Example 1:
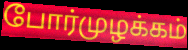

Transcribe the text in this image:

போர்முழக்கம்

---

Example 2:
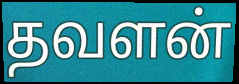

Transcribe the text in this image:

தவளன்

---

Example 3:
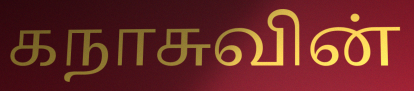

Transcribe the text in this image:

கநாசுவின்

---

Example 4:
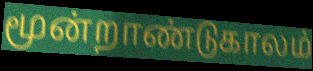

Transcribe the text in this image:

மூன்றாண்டுகாலம்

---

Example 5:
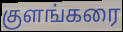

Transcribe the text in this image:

குளங்கரை